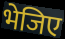
भेजिए